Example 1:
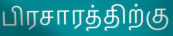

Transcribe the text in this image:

பிரசாரத்திற்கு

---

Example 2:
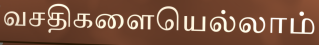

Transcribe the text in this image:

வசதிகளையெல்லாம்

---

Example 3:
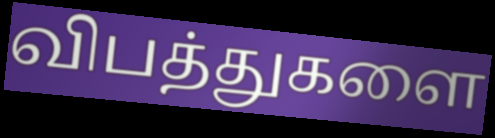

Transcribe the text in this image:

விபத்துகளை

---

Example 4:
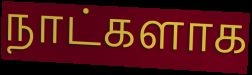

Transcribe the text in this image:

நாட்களாக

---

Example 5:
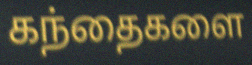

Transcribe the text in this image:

கந்தைகளை